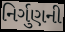
નિર્ગુણની